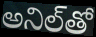
అనిల్‌తో